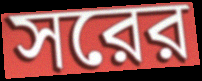
সরের